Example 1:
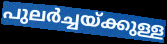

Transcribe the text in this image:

പുലർച്ചയ്ക്കുള്ള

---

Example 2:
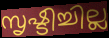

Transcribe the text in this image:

സൃഷ്ടിച്ചില്ല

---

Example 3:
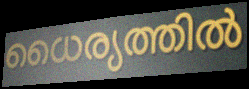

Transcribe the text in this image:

ധൈര്യത്തിൽ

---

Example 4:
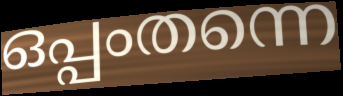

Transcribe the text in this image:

ഒപ്പംതന്നെ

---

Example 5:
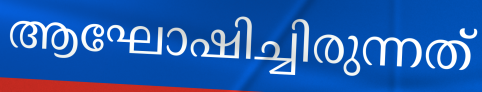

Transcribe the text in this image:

ആഘോഷിച്ചിരുന്നത്